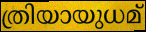
ത്രിയായുധമ്